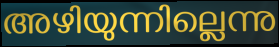
അഴിയുന്നില്ലെന്നു